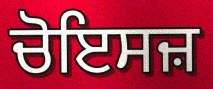
ਚੋਇਸਜ਼